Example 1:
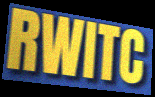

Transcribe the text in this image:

RWITC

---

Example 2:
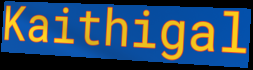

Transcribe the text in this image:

Kaithigal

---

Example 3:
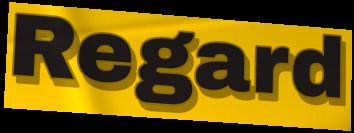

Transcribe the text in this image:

Regard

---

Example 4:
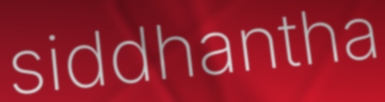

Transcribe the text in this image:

siddhantha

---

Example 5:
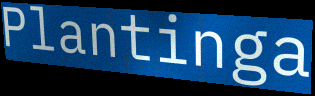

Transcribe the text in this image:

Plantinga